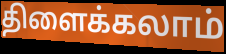
திளைக்கலாம்